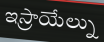
ఇస్రాయేల్ను